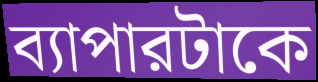
ব্যাপারটাকে